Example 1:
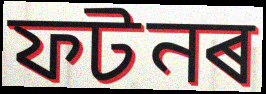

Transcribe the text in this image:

ফটনৰ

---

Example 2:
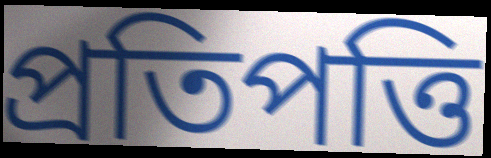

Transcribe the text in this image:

প্ৰতিপত্তি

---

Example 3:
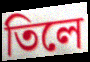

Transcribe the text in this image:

তিলে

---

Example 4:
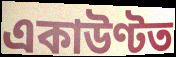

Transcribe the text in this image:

একাউণ্টত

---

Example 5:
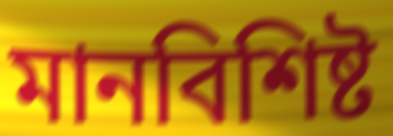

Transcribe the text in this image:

মানবিশিষ্ট